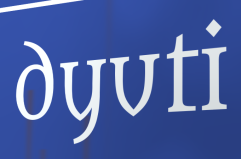
dyuti